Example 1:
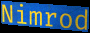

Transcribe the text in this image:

Nimrod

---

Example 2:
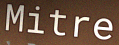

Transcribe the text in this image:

Mitre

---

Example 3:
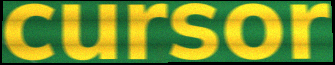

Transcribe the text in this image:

cursor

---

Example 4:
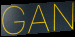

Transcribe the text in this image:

GAN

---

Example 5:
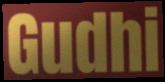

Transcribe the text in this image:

Gudhi